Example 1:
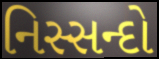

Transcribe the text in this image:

નિસ્સન્દો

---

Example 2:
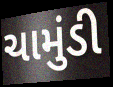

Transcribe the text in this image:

ચામુંડી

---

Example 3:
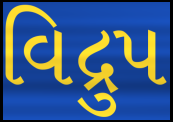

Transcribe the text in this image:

વિદ્રુપ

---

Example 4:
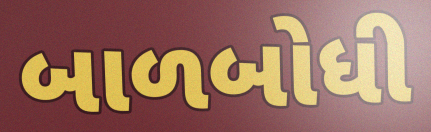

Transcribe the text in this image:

બાળબોધી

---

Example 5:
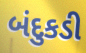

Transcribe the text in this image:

બંદુકડી